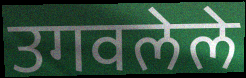
उगवलेले